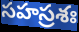
సహస్రశః